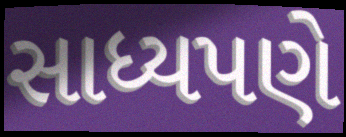
સાધ્યપણે